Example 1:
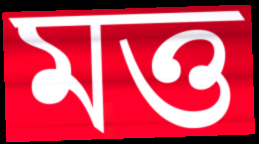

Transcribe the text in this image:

মত্ত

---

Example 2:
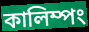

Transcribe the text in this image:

কালিম্পং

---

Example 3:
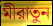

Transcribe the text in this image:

মীরাতুন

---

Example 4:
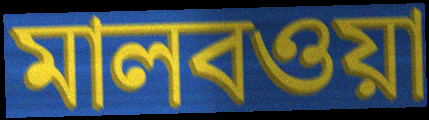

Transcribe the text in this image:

মালবওয়া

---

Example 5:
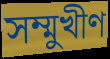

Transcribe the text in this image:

সম্মুখীণ